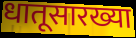
धातूसारख्या